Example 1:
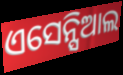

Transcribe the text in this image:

ଏସେନ୍ସିଆଲ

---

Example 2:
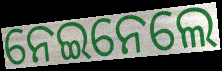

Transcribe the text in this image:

ନେଇନେଲେ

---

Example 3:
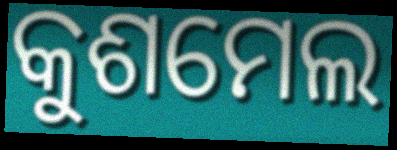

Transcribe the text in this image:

କୁଶମେଲ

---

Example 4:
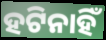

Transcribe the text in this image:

ହଟିନାହିଁ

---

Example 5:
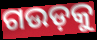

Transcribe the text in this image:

ଗଉଡ଼କୁ